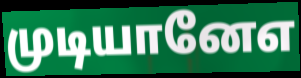
முடியானேஎ